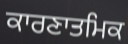
ਕਾਰਣਾਤਮਿਕ